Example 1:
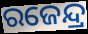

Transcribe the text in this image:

ରଜେନ୍ଦ୍ର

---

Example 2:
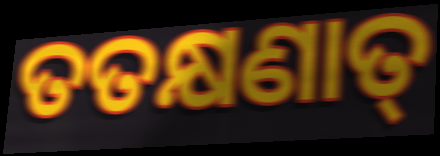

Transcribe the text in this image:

ତତକ୍ଷଣାତ୍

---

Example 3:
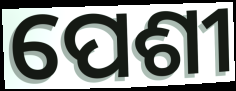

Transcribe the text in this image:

ପେଶୀ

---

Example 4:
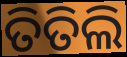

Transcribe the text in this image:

ତିତିଲି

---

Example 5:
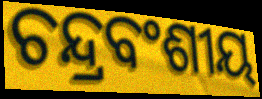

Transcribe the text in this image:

ଚନ୍ଦ୍ରବଂଶୀୟ